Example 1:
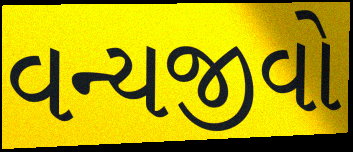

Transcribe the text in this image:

વન્યજીવો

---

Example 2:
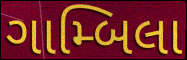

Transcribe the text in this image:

ગામ્બિલા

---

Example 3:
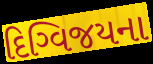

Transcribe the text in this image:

દિગ્વિજયના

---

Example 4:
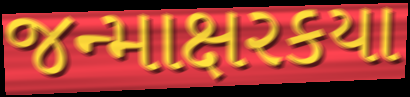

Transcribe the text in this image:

જન્માક્ષરકયા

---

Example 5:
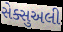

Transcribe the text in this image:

સેક્સુઅલી